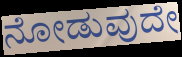
ನೋಡುವುದೇ